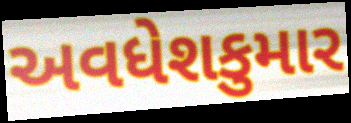
અવધેશકુમાર